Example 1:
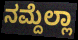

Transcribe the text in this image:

ನಮ್ದೆಲ್ಲಾ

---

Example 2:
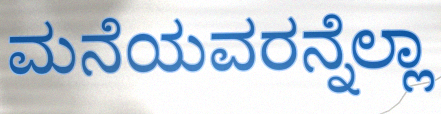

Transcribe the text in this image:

ಮನೆಯವರನ್ನೆಲ್ಲಾ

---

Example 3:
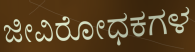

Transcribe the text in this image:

ಜೀವಿರೋಧಕಗಳ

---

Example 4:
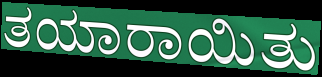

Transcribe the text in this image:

ತಯಾರಾಯಿತು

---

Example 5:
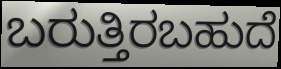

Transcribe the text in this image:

ಬರುತ್ತಿರಬಹುದೆ